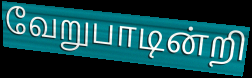
வேறுபாடின்றி